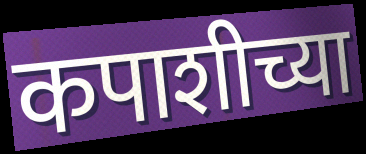
कपाशीच्या